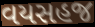
વયસહજ